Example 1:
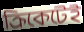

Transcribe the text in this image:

ক্রিকেটেই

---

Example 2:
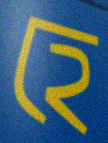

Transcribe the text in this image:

হে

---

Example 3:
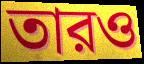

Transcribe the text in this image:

তারও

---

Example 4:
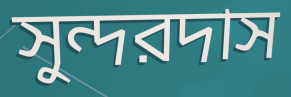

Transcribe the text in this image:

সুন্দরদাস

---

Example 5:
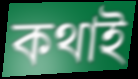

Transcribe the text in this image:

কথাই